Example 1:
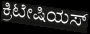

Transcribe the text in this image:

ಕ್ರಿಟೇಷಿಯಸ್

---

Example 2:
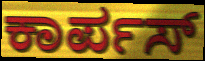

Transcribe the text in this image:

ಕಾರ್ಪಸ್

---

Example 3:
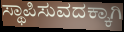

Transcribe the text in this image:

ಸ್ಥಾಪಿಸುವದಕ್ಕಾಗಿ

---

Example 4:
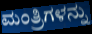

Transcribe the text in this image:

ಮಂತ್ರಿಗಳನ್ನು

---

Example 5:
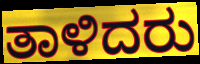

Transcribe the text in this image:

ತಾಳಿದರು